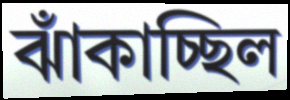
ঝাঁকাচ্ছিল